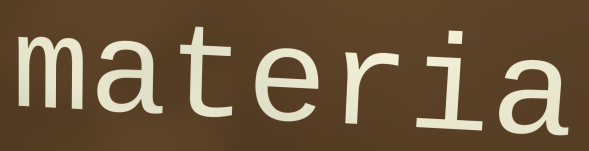
materia